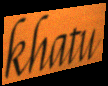
khatu